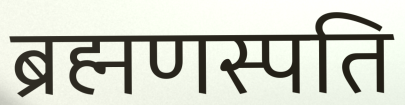
ब्रह्मणस्पति